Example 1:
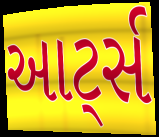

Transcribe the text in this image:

આટ્‌ર્સ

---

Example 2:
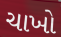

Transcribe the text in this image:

ચાખો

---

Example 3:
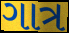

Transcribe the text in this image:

ગાત્ર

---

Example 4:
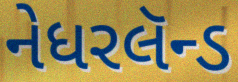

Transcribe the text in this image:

નેધરલૅન્ડ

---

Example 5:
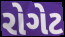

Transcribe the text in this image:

રોગેટ